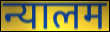
न्यालम